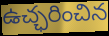
ఉచ్ఛరించిన